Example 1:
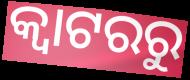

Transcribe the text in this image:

କ୍ୱାଟରରୁ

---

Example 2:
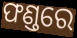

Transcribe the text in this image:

ଫଣ୍ଡରେ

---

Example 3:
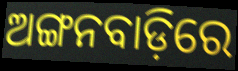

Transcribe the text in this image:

ଅଙ୍ଗନବାଡ଼ିରେ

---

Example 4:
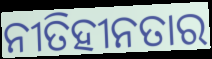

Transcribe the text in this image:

ନୀତିହୀନତାର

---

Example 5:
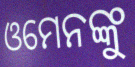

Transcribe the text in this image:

ଓମେନଙ୍କୁ